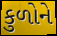
કુળોને